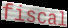
fiscal